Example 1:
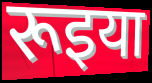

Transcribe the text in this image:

रूइया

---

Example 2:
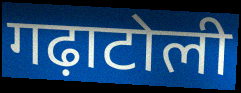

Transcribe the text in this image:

गढ़ाटोली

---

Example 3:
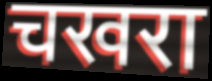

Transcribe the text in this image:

चखरा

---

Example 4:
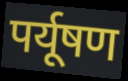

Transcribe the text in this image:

पर्यूषण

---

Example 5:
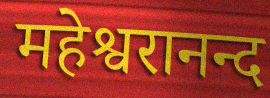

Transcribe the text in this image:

महेश्वरानन्द